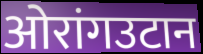
ओरांगउटान